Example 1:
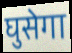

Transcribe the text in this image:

घुसेगा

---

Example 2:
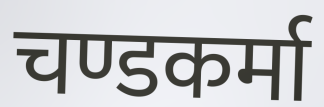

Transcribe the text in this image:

चण्डकर्मा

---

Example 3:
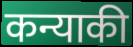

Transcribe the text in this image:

कन्याकी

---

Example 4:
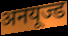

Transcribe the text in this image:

अनयूज्ड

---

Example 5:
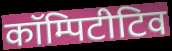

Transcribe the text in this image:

कॉम्पिटीटिव